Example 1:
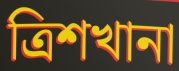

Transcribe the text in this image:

ত্রিশখানা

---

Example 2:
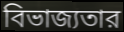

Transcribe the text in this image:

বিভাজ্যতার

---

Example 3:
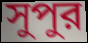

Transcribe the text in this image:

সুপুর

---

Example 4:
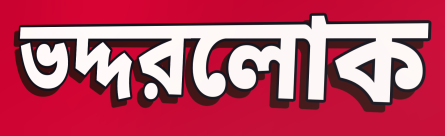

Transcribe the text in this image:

ভদ্দরলোক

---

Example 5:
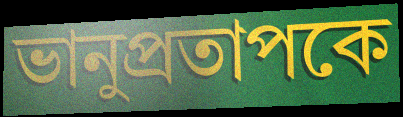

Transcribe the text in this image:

ভানুপ্রতাপকে